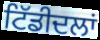
ਟਿੱਡੀਦਲਾਂ